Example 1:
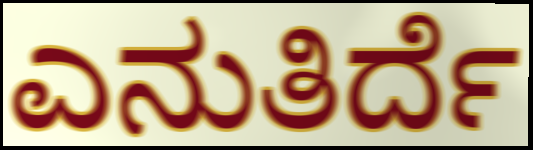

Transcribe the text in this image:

ಎನುತಿರ್ದೆ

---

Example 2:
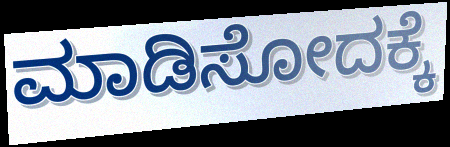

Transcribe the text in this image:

ಮಾಡಿಸೋದಕ್ಕೆ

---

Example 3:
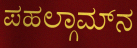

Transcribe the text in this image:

ಪಹಲ್ಗಾಮ್‌ನ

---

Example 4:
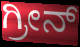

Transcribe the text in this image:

ಗ್ರೀನ್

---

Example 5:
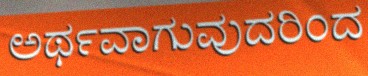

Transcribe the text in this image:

ಅರ್ಥವಾಗುವುದರಿಂದ